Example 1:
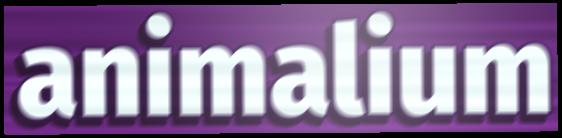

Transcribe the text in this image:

animalium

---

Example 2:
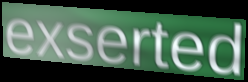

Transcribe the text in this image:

exserted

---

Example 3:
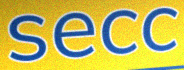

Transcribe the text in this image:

secc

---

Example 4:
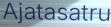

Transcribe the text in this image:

Ajatasatru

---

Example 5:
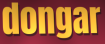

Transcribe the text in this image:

dongar